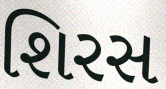
શિરસ